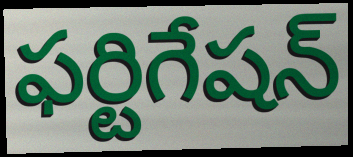
ఫర్టిగేషన్